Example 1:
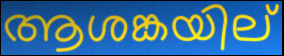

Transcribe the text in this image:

ആശങ്കയില്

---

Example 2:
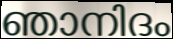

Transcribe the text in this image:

ഞാനിദം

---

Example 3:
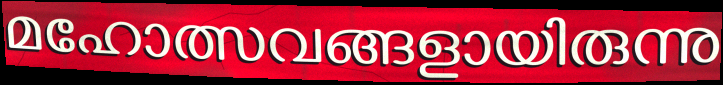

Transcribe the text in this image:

മഹോത്സവങ്ങളായിരുന്നു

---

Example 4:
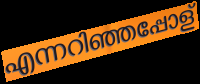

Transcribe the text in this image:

എന്നറിഞ്ഞപ്പോള്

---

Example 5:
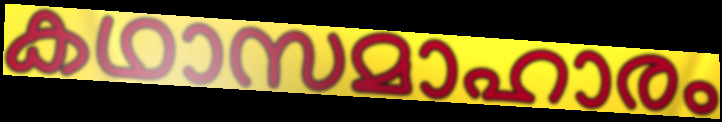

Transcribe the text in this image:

കഥാസമാഹാരം